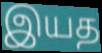
இயத